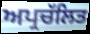
ਅਪ੍ਰਚੱਲਿਤ